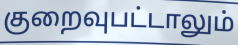
குறைவுபட்டாலும்